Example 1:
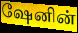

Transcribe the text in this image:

ஷேனின்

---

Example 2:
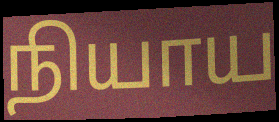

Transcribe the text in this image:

நியாய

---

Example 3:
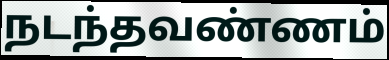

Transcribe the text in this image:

நடந்தவண்ணம்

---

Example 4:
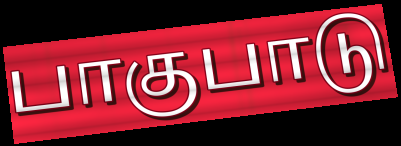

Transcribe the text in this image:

பாகுபாடு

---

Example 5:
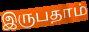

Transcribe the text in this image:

இருபதாம்